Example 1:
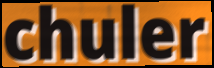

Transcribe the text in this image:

chuler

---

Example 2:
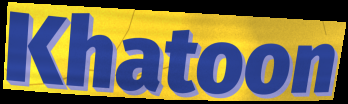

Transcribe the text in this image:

Khatoon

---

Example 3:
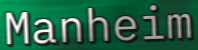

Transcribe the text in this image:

Manheim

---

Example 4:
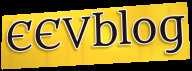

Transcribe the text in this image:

EEVblog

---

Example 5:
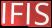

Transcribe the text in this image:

IFIS